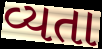
વ્યતા